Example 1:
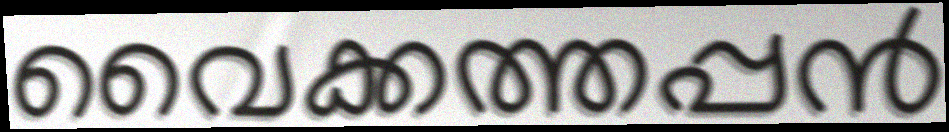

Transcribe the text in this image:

വൈക്കത്തപ്പൻ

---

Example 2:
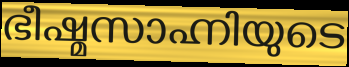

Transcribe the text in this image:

ഭീഷ്മസാഹ്നിയുടെ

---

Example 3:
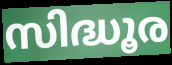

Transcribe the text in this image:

സിദ്ധൂര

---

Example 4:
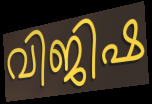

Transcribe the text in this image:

വിജിഷ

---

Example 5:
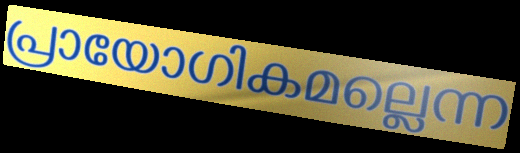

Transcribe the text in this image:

പ്രായോഗികമല്ലെന്ന